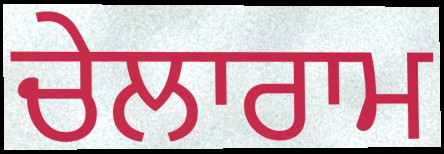
ਚੇਲਾਰਾਮ